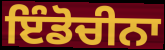
ਇੰਡੋਚੀਨਾ